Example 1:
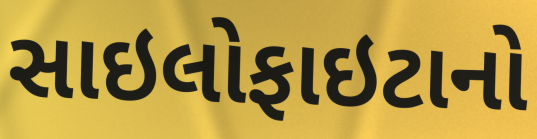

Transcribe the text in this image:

સાઇલોફાઇટાનો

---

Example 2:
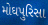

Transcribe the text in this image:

મોઘપુરિસા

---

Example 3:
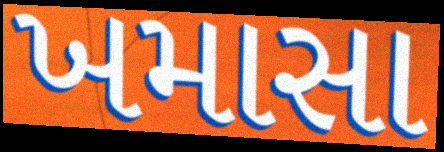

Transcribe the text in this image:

ખમાસા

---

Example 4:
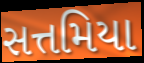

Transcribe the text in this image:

સત્તમિયા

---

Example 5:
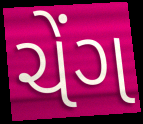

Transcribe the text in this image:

ચેંગ